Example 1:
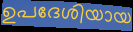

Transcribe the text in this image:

ഉപദേശിയായ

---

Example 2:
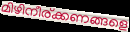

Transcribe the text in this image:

മിഴിനീര്ക്കണങ്ങളെ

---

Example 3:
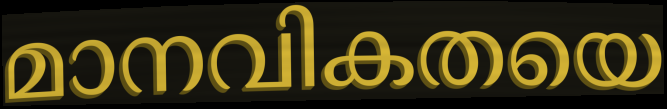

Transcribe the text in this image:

മാനവികതയെ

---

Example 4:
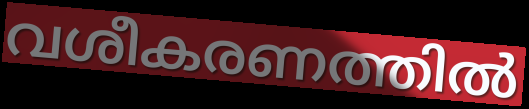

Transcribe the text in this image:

വശീകരണത്തിൽ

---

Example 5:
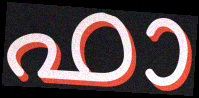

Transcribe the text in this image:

ഫാ